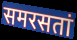
समरसतां